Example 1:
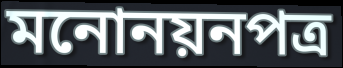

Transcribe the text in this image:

মনোনয়নপত্র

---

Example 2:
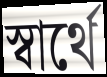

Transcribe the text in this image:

স্বার্থে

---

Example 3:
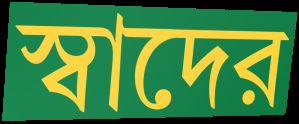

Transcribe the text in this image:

স্বাদের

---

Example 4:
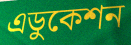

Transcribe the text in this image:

এডুকেশন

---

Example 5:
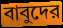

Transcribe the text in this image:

বাবুদের